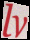
lv